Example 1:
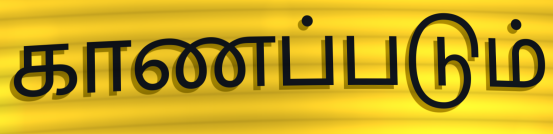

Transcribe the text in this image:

காணப்படும்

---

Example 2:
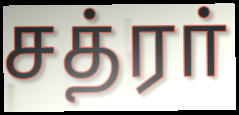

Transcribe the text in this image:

சத்ரர்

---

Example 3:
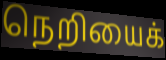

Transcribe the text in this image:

நெறியைக்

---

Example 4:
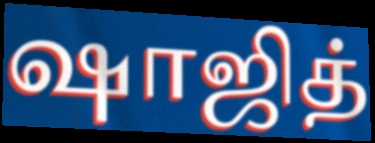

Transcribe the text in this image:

ஷாஜித்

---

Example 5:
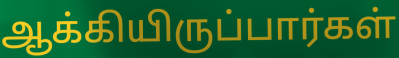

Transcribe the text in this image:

ஆக்கியிருப்பார்கள்